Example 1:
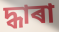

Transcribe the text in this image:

দ্ধাৰা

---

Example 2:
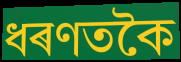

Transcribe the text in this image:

ধৰণতকৈ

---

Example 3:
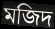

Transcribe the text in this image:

মজিদ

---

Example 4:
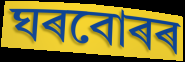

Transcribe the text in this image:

ঘৰবোৰৰ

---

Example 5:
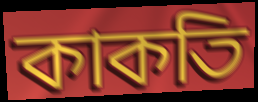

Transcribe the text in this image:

কাকতি